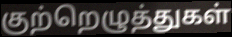
குற்றெழுத்துகள்